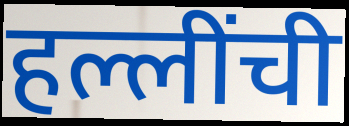
हल्लींची